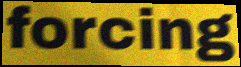
forcing